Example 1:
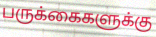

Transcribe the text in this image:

பருக்கைகளுக்கு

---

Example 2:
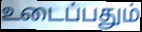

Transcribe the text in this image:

உடைப்பதும்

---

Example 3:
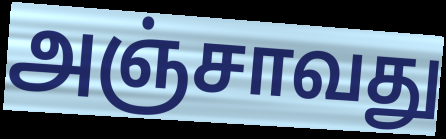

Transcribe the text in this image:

அஞ்சாவது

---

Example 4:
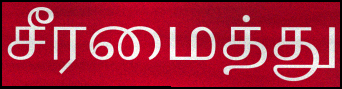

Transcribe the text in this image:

சீரமைத்து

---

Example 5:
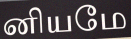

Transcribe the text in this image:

னியமே